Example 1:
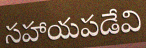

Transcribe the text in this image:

సహాయపడేవి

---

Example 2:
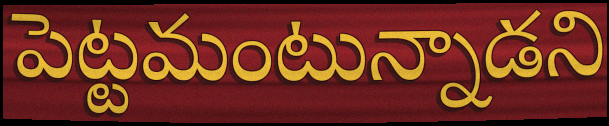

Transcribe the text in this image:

పెట్టమంటున్నాడని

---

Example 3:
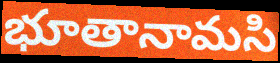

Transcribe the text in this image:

భూతానామసి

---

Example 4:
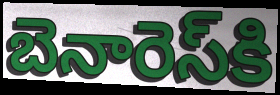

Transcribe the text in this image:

బెనారెస్‌కి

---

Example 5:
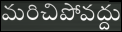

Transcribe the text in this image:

మరిచిపోవద్దు